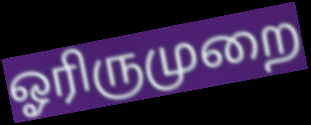
ஓரிருமுறை